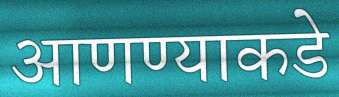
आणण्याकडे